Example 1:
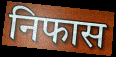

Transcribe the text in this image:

निफास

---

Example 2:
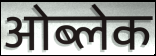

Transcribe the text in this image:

ओब्लेक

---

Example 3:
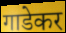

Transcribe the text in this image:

गाडेकर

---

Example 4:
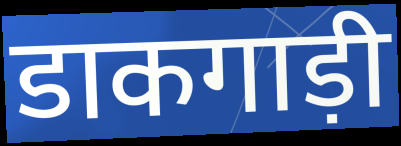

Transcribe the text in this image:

डाकगाड़ी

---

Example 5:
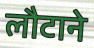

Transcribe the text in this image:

लौटाने